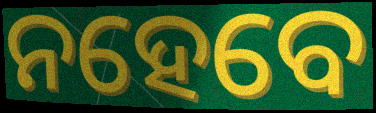
ନହେବେ